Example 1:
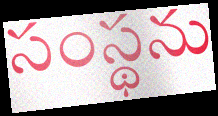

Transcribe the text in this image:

సంస్థను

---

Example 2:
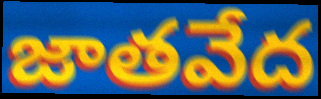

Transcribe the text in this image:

జాతవేద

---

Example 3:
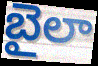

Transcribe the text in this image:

బైలా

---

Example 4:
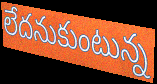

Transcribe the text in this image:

లేదనుకుంటున్న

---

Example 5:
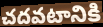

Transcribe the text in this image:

చదవటానికి